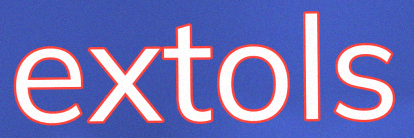
extols